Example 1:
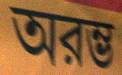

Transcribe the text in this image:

অরম্ভ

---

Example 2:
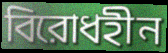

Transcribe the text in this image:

বিরোধহীন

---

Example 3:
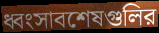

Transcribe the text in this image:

ধ্বংসাবশেষগুলির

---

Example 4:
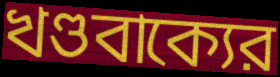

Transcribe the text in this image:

খণ্ডবাক্যের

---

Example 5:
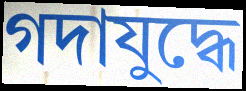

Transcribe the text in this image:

গদাযুদ্ধে